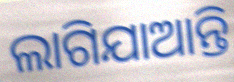
ଲାଗିଯାଆନ୍ତି